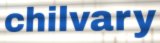
chilvary